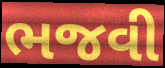
ભજવી